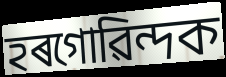
হৰগোৱিন্দক